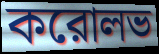
করোলভ